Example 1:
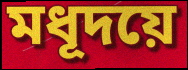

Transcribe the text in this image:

মধূদয়ে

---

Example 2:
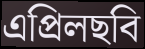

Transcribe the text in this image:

এপ্রিলছবি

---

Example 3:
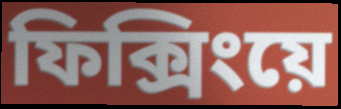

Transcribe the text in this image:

ফিক্সিংয়ে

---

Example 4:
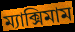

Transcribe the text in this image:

ম্যাক্সিমাম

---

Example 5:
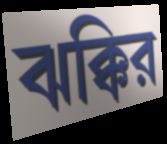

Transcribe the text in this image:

ঝক্কির